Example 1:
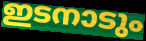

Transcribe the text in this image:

ഇടനാടും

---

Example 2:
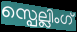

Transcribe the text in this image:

സ്പെല്ലിംഗ്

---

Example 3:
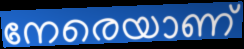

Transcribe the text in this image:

നേരെയാണ്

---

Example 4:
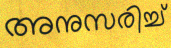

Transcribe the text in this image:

അനുസരിച്ച്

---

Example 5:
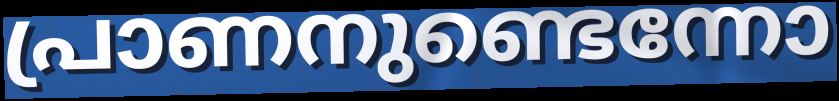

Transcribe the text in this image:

പ്രാണനുണ്ടെന്നോ